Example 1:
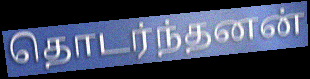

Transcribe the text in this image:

தொடர்ந்தனன்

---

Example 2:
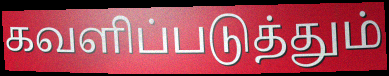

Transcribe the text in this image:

கவளிப்படுத்தும்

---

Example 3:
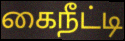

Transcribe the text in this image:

கைநீட்டி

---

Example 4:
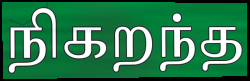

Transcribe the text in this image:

நிகறந்த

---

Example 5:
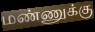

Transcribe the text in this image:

மண்ணுக்கு